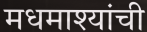
मधमाश्‍यांची